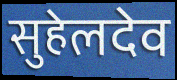
सुहेलदेव